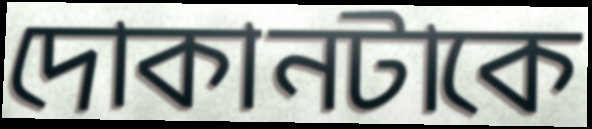
দোকানটাকে